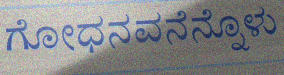
ಗೋಧನವನೆನ್ನೊಳು